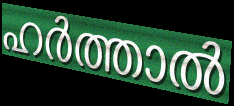
ഹർത്താൽ